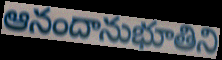
ఆనందానుభూతిని